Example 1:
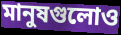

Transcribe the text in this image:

মানুষগুলোও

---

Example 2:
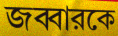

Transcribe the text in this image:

জব্বারকে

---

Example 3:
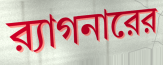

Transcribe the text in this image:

র‍্যাগনারের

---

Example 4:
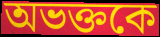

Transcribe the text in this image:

অভক্তকে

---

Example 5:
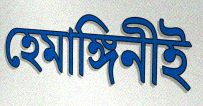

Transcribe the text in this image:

হেমাঙ্গিনীই